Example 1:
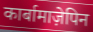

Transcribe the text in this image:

कार्बामाज़ेपिन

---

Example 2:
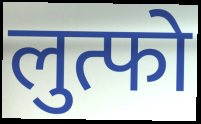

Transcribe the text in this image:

लुत्फो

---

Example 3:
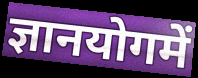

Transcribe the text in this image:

ज्ञानयोगमें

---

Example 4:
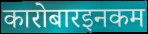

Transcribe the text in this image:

कारोबारइनकम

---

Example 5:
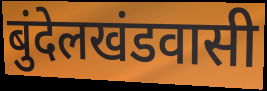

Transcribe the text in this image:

बुंदेलखंडवासी